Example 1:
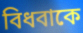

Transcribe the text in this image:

বিধবাকে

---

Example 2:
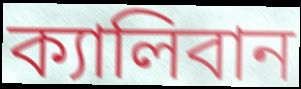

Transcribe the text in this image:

ক্যালিবান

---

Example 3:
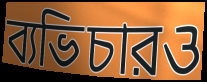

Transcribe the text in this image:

ব্যভিচারও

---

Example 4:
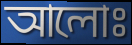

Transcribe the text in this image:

আলোঃ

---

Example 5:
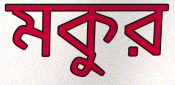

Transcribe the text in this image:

মকুর